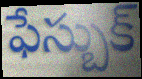
ఫేస్బుక్